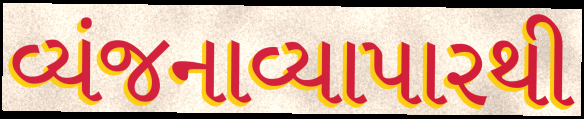
વ્યંજનાવ્યાપારથી